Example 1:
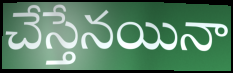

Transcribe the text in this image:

చేస్తేనయినా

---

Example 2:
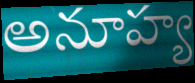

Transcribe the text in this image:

అనూహ్య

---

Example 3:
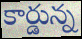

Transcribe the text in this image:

కార్డున్న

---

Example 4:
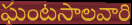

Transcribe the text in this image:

ఘంటసాలవారి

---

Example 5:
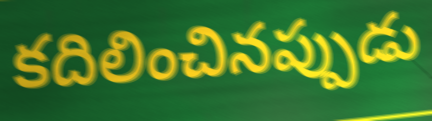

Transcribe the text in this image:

కదిలించినప్పుడు